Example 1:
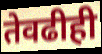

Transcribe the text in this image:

तेवढीही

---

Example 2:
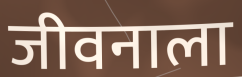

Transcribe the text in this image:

जीवनाला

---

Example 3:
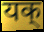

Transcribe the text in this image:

यक्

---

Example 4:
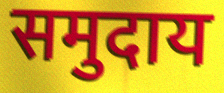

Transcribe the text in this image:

समुदाय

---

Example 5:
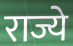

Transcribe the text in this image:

राज्ये